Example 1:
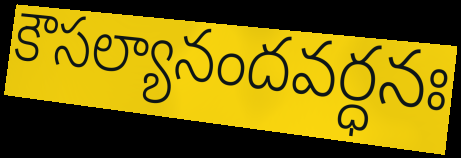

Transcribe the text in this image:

కౌసల్యానందవర్ధనః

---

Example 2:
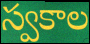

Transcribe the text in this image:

స్వకాల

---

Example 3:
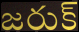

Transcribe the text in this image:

జరుక్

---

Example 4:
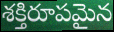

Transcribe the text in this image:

శక్తిరూపమైన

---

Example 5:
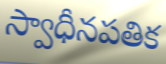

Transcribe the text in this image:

స్వాధీనపతిక